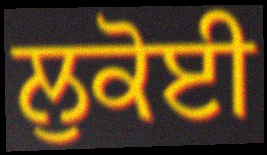
ਲੁਕੋਈ